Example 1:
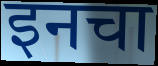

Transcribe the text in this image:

इनचा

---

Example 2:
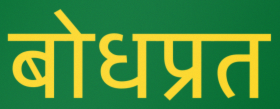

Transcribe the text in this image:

बोधप्रत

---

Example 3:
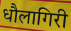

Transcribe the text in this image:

धौलागिरी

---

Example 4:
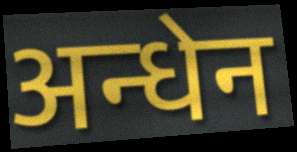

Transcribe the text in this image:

अन्धेन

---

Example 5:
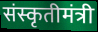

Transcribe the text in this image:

संस्कृतीमंत्री